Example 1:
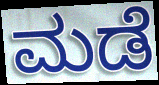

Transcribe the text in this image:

ಮಡೆ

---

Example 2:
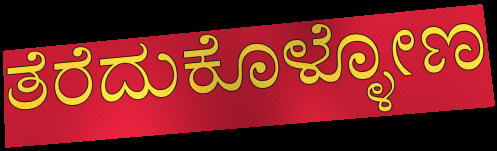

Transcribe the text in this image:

ತೆರೆದುಕೊಳ್ಳೋಣ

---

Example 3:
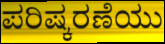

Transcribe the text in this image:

ಪರಿಷ್ಕರಣೆಯು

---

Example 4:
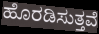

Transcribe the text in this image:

ಹೊರಡಿಸುತ್ತವೆ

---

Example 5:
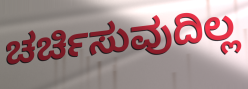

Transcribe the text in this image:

ಚರ್ಚಿಸುವುದಿಲ್ಲ